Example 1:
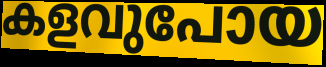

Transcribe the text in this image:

കളവുപോയ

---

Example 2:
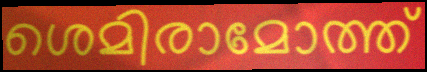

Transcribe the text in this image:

ശെമിരാമോത്ത്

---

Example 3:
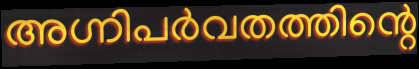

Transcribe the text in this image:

അഗ്നിപർവതത്തിന്റെ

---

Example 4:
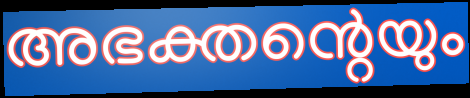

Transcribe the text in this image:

അഭക്തന്റെയും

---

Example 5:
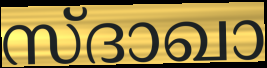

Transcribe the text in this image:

സ്ദാഖാ